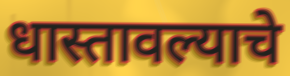
धास्तावल्याचे